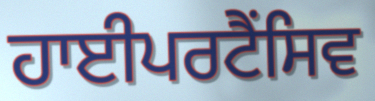
ਹਾਈਪਰਟੈਂਸਿਵ